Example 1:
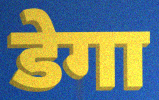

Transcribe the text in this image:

डेगा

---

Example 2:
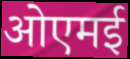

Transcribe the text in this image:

ओएमई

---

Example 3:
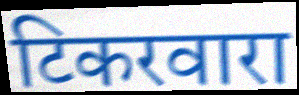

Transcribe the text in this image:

टिकरवारा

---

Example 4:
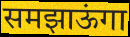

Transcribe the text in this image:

समझाऊंगा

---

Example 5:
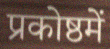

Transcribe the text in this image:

प्रकोष्ठमें